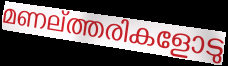
മണല്ത്തരികളോടു